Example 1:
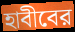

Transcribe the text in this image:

হাবীবের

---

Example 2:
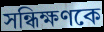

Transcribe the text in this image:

সন্ধিক্ষণকে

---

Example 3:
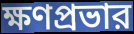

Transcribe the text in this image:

ক্ষণপ্রভার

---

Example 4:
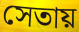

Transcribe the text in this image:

সেতায়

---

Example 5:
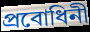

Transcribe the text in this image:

প্রবোধিনী